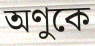
অণুকে